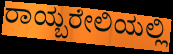
ರಾಯ್ಬರೇಲಿಯಲ್ಲಿ